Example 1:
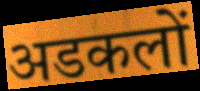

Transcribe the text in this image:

अडकलों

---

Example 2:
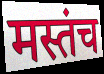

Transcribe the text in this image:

मस्तंच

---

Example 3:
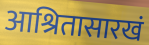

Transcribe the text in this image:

आश्रितासारखं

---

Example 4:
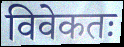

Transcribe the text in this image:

विवेकतः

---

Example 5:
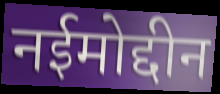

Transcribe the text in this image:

नईमोद्दीन